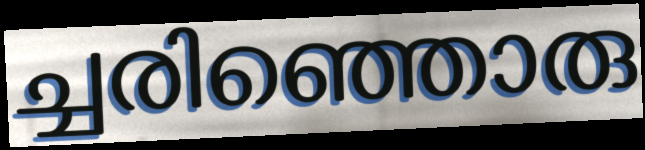
ച്ചരിഞ്ഞൊരു